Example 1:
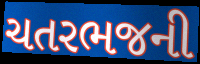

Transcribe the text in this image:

ચતરભજની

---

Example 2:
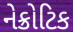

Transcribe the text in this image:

નેક્રોટિક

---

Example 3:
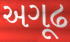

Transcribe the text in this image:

અગૂઢ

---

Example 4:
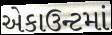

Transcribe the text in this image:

એકાઉન્ટમાં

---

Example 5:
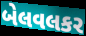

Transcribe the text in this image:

બેલવલકર